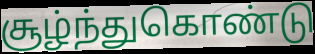
சூழ்ந்துகொண்டு